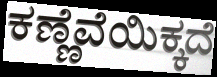
ಕಣ್ಣೆವೆಯಿಕ್ಕದೆ